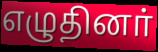
எழுதினர்